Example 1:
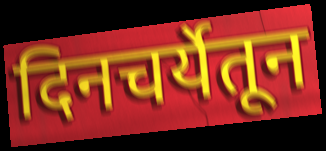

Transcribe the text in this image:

दिनचर्येतून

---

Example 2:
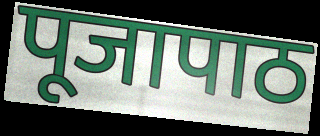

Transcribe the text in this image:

पूजापाठ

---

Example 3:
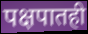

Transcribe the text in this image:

पक्षपातही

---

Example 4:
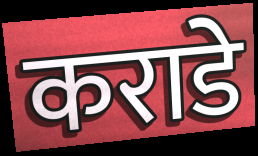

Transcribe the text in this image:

कराडे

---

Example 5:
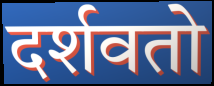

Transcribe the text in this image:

दर्शवतो